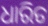
ଧାରିତ